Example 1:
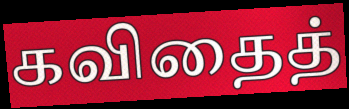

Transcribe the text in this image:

கவிதைத்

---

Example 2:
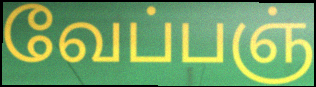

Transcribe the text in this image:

வேப்பஞ்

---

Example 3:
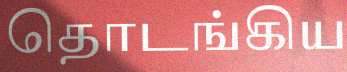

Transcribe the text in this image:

தொடங்கிய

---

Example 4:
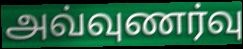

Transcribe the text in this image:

அவ்வுணர்வு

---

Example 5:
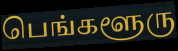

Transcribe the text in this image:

பெங்களூரு